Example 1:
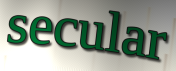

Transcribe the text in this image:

secular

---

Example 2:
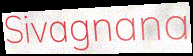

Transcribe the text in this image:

Sivagnana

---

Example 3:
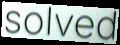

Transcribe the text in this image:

solved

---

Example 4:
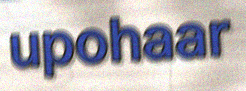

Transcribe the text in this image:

upohaar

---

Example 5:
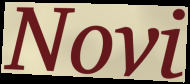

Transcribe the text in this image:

Novi